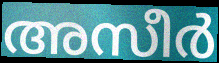
അസീർ